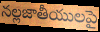
నల్లజాతీయులపై